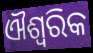
ଐଶ୍ବରିକ